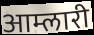
आम्लारी